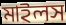
মাইলস